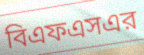
বিএফএসএর